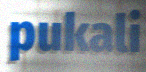
pukali